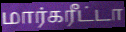
மார்கரீட்டா